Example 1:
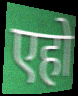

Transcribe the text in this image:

एहो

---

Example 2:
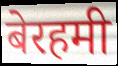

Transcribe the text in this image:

बेरहमी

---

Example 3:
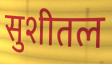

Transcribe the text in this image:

सुशीतल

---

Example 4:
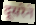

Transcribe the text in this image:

दूसरेने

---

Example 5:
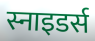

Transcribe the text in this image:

स्नाइडर्स